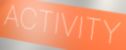
ACTIVITY